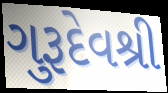
ગુરૂદેવશ્રી